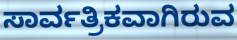
ಸಾರ್ವತ್ರಿಕವಾಗಿರುವ